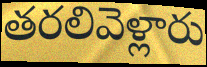
తరలివెళ్లారు